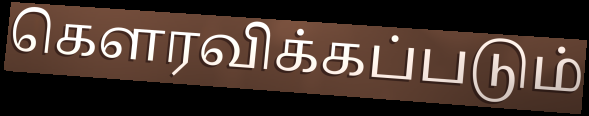
கௌரவிக்கப்படும்